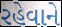
રહેવાને